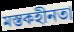
মস্তকহীনতা